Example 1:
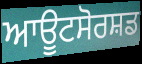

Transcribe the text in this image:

ਆਊਟਸੋਰਸ਼ਡ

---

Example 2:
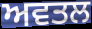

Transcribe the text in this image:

ਅਵਤਲ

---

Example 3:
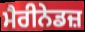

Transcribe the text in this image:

ਮੈਰੀਨੇਡਜ਼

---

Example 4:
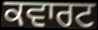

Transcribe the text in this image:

ਕਵਾਰਟ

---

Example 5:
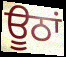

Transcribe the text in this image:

ਊਠਾਂ